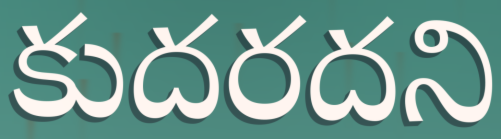
కుదరదని